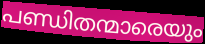
പണ്ഡിതന്മാരെയും